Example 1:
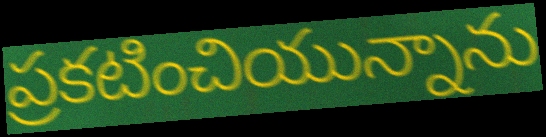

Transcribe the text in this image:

ప్రకటించియున్నాను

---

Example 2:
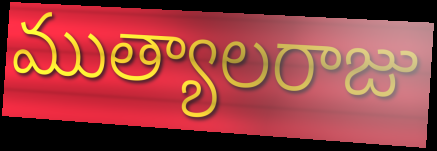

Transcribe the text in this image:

ముత్యాలరాజు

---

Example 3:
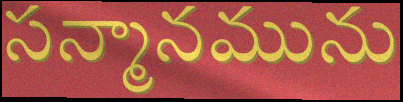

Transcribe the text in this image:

సన్మానమును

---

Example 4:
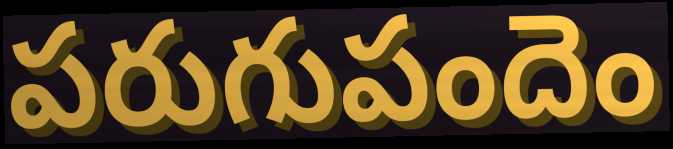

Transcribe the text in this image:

పరుగుపందెం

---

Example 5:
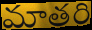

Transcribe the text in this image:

మాతరి